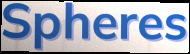
Spheres